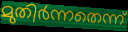
മുതിർന്നതെന്ന്